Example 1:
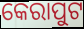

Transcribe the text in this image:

କେରାପୁଟ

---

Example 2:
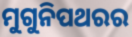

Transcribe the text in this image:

ମୁଗୁନିପଥରର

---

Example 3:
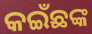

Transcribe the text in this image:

କଇଁଛଙ୍କ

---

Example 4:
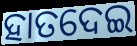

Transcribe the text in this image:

ହାତଦେଇ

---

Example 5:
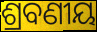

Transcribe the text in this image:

ଶ୍ରବଣୀୟ